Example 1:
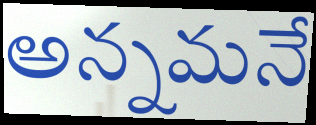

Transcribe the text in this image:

అన్నమనే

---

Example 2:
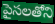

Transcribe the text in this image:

పైసలతోని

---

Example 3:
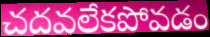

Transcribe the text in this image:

చదవలేకపోవడం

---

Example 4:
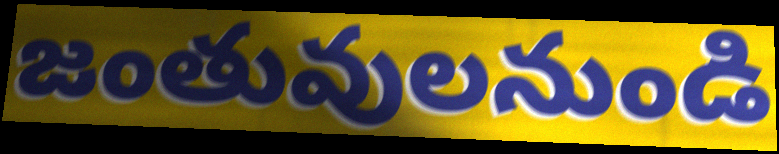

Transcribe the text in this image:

జంతువులనుండి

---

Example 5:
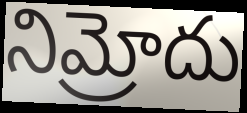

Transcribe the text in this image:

నిమ్రోదు